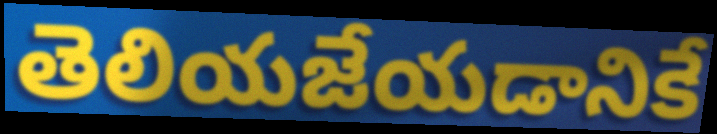
తెలియజేయడానికే